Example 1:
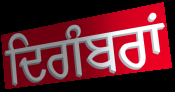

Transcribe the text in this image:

ਦਿਗੰਬਰਾਂ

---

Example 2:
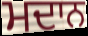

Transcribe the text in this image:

ਮਦਾਨ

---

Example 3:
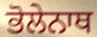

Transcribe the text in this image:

ਭੋਲੇਨਾਥ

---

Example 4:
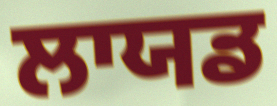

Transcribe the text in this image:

ਲਾਯਡ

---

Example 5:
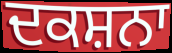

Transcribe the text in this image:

ਦਕਸ਼ਨਾ